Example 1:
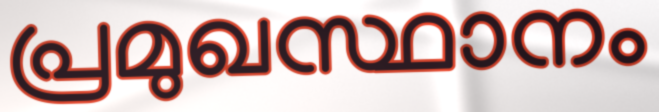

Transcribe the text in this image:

പ്രമുഖസ്ഥാനം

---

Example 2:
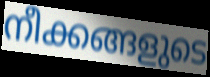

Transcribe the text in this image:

നീക്കങ്ങളുടെ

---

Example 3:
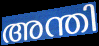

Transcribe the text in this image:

അന്തി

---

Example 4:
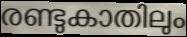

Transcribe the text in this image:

രണ്ടുകാതിലും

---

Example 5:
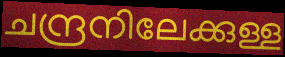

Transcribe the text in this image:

ചന്ദ്രനിലേക്കുള്ള